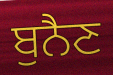
ਬੁਨੈਣ